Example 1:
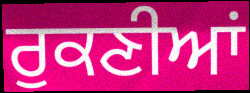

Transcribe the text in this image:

ਰੁਕਣੀਆਂ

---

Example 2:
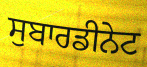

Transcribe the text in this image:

ਸੁਬਾਰਡੀਨੇਟ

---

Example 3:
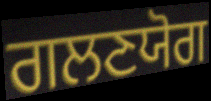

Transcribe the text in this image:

ਗਲਣਯੋਗ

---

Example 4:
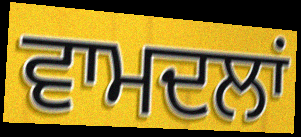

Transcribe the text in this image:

ਵਾਮਦਲਾਂ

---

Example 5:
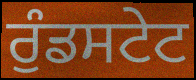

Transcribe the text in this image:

ਰੁੰਡਸਟੇਟ